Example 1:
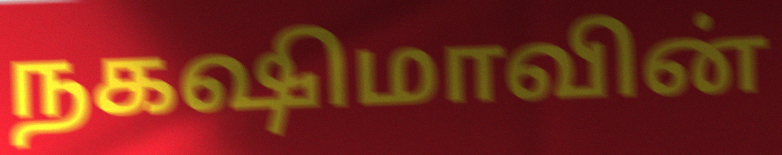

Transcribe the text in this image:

நகஷிமாவின்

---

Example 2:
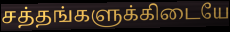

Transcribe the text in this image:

சத்தங்களுக்கிடையே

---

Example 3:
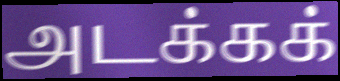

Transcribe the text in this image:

அடக்கக்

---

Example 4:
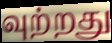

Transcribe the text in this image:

வுற்றது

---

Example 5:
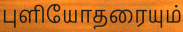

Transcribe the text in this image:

புளியோதரையும்